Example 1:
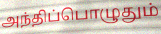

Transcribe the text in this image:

அந்திப்பொழுதும்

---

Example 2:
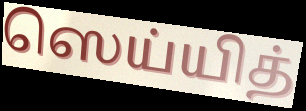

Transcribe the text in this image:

ஸெய்யித்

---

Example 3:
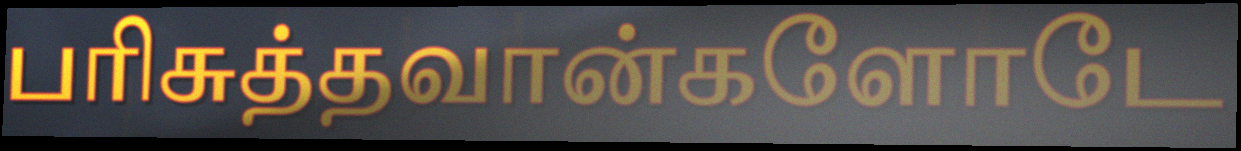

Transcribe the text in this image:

பரிசுத்தவான்களோடே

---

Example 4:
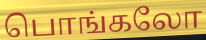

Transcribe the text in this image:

பொங்கலோ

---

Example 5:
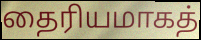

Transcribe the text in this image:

தைரியமாகத்